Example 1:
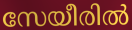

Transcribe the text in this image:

സേയീരിൽ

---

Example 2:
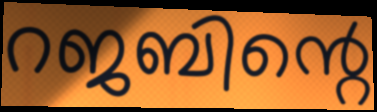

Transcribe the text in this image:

റജബിന്റെ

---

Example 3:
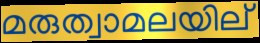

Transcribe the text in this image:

മരുത്വാമലയില്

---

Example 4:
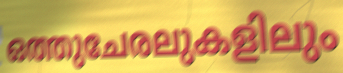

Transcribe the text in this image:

ഒത്തുചേരലുകളിലും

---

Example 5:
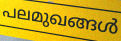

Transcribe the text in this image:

പലമുഖങ്ങൾ